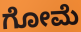
ಗೋಮೆ